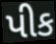
પીક